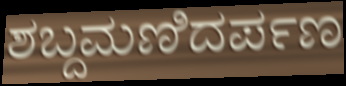
ಶಬ್ದಮಣಿದರ್ಪಣ